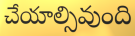
చేయాల్సివుంది